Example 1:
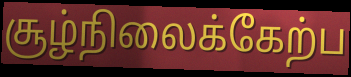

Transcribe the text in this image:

சூழ்நிலைக்கேற்ப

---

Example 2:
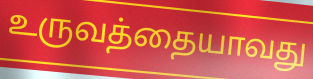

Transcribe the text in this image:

உருவத்தையாவது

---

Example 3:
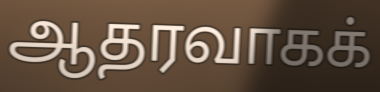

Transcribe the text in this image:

ஆதரவாகக்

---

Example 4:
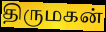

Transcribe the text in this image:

திருமகன்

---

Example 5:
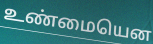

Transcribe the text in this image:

உண்மையென